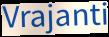
Vrajanti